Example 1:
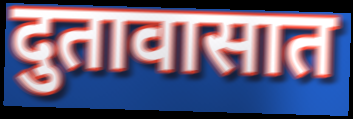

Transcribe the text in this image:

दुतावासात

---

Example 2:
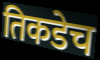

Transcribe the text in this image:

तिकडेच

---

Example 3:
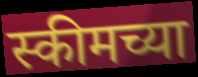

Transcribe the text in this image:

स्कीमच्या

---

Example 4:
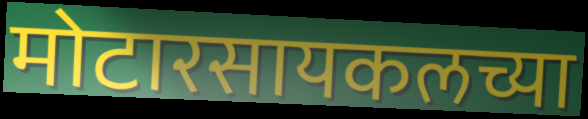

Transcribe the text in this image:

मोटारसायकलच्या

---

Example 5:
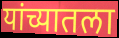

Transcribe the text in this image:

यांच्यातला